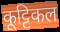
कूट्टिकल